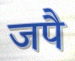
जपै